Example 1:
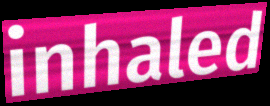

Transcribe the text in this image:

inhaled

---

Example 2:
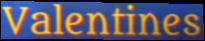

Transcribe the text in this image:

Valentines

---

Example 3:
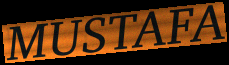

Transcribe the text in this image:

MUSTAFA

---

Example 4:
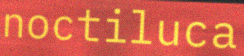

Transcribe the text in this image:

noctiluca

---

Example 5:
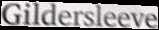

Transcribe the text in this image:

Gildersleeve